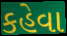
કહેવા